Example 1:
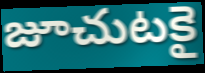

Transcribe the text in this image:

జూచుటకై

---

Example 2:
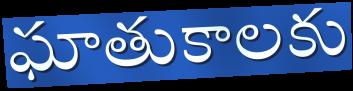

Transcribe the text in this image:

ఘాతుకాలకు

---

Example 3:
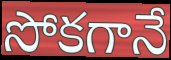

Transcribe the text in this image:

సోకగానే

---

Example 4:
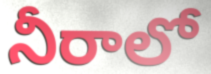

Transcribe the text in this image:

నీరాలో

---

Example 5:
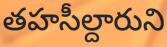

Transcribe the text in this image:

తహసీల్దారుని